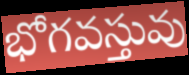
భోగవస్తువు